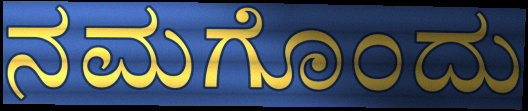
ನಮಗೊಂದು